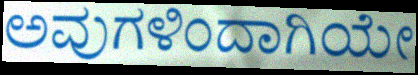
ಅವುಗಳಿಂದಾಗಿಯೇ